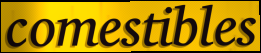
comestibles